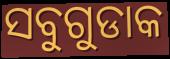
ସବୁଗୁଡାକ